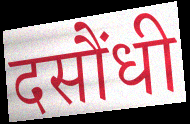
दसौंधी